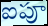
ఐపూ